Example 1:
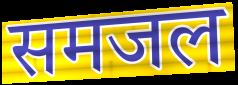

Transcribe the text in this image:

समजल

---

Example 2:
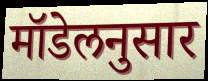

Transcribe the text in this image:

मॉडेलनुसार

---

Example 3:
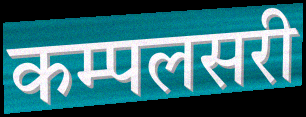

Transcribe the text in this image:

कम्पलसरी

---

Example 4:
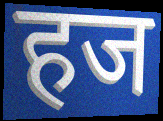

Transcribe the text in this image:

हज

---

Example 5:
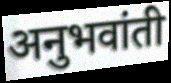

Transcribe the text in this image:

अनुभवांती